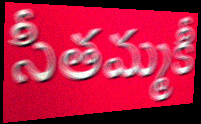
సీతమ్మకీ